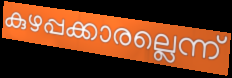
കുഴപ്പക്കാരല്ലെന്ന്